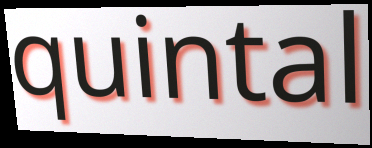
quintal